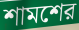
শামশের